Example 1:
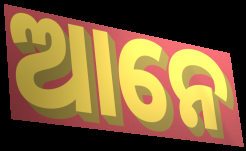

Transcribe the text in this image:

ଆନେ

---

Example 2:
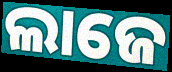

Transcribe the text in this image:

ଲାଜେ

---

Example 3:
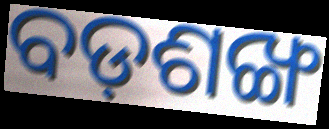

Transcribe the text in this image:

ବଡ଼ଶଙ୍ଖ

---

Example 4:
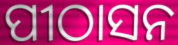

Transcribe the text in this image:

ପୀଠାସନ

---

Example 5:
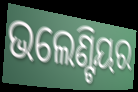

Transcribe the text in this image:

ଭଲେଣ୍ଟିୟର